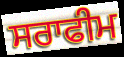
ਸਰਾਫੀਮ